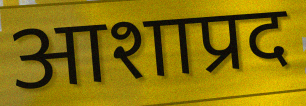
आशाप्रद